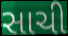
સાચી